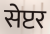
सेप्टर